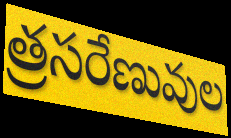
త్రసరేణువుల